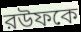
রউফকে